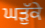
ਘੜੁੱਕੇ